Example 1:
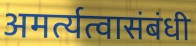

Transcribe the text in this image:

अमर्त्यत्वासंबंधी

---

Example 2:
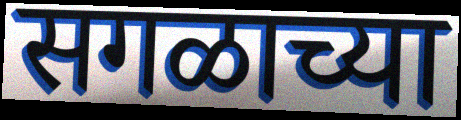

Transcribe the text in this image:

सगळाच्या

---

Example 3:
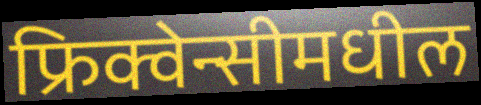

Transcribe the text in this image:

फ्रिक्वेन्सीमधील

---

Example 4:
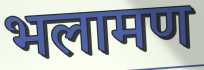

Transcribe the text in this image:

भलामण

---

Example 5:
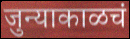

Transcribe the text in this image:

जुन्याकाळचं